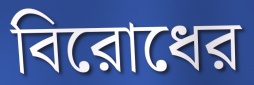
বিরোধের